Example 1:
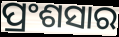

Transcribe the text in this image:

ପ୍ରଂଶସାର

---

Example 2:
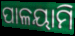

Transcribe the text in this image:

ପାଳୟାମି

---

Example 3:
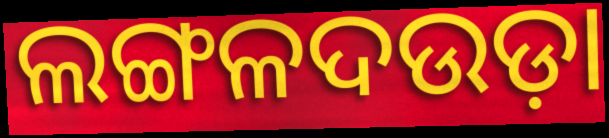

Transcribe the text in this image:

ଲଙ୍ଗଳଦଉଡ଼ା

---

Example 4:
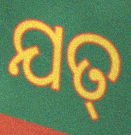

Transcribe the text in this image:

ଯତ୍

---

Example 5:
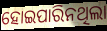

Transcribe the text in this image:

ହୋଇପାରିନଥିଲା